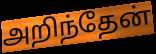
அறிந்தேன்